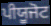
ਪੀਯੂਜੋਟ